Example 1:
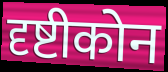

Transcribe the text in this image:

दृष्टीकोन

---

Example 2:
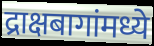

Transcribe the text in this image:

द्राक्षबागांमध्ये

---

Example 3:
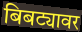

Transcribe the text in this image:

बिबट्यावर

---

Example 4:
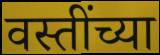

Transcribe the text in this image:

वस्तींच्या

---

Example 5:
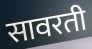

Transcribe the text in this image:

सावरती